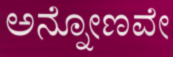
ಅನ್ನೋಣವೇ